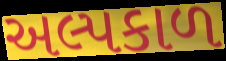
અલ્પકાળ